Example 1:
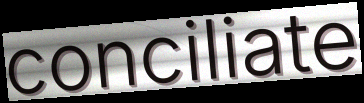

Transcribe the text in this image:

conciliate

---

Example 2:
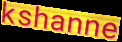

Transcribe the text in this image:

kshanne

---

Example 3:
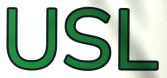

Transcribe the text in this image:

USL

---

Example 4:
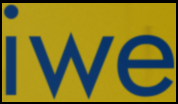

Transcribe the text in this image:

iwe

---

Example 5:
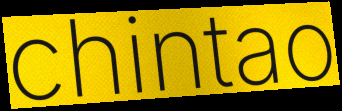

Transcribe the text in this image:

chintao